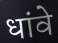
धांवे